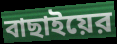
বাছাইয়ের